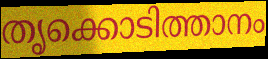
തൃക്കൊടിത്താനം